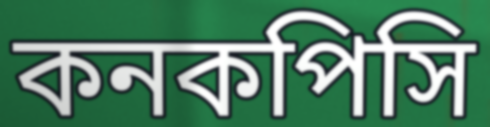
কনকপিসি